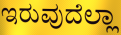
ಇರುವುದೆಲ್ಲಾ